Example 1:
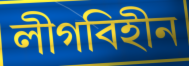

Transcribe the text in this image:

লীগবিহীন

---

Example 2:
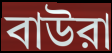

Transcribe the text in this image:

বাউরা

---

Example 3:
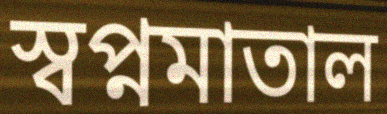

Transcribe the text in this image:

স্বপ্নমাতাল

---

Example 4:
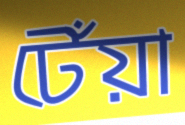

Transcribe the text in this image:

টেঁয়া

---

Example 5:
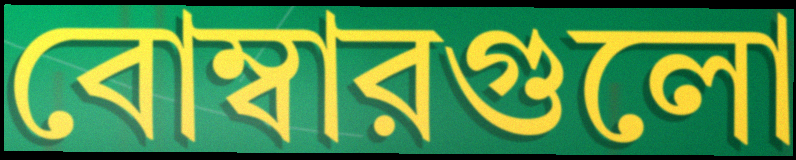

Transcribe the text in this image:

বোম্বারগুলো